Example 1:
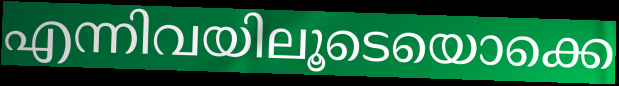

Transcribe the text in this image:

എന്നിവയിലൂടെയൊക്കെ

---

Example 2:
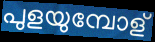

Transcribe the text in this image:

പുളയുമ്പോള്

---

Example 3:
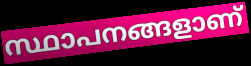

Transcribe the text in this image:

സ്ഥാപനങ്ങളാണ്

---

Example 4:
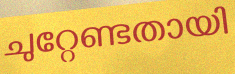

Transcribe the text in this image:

ചുറ്റേണ്ടതായി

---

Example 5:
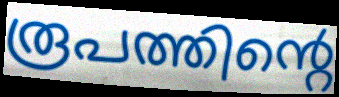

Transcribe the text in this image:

രൂപത്തിന്റെ